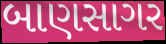
બાણસાગર